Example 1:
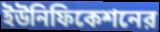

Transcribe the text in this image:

ইউনিফিকেশনের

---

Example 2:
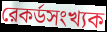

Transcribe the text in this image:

রেকর্ডসংখ্যক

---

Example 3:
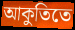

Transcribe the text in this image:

আকুতিতে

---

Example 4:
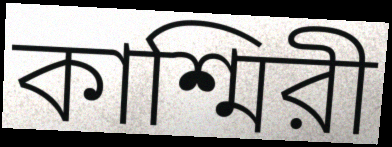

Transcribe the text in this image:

কাশ্মিরী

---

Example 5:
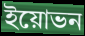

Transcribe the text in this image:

ইয়োভন